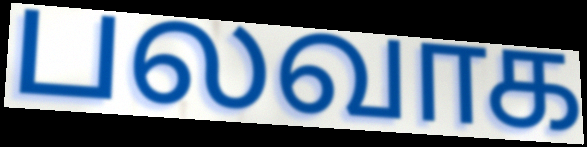
பலவாக